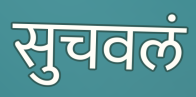
सुचवलं